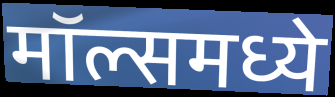
मॉल्समध्ये